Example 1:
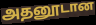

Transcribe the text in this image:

அதனூடான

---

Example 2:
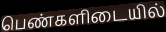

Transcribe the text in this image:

பெண்களிடையில்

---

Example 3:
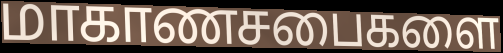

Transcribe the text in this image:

மாகாணசபைகளை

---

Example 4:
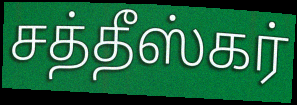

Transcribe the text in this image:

சத்தீஸ்கர்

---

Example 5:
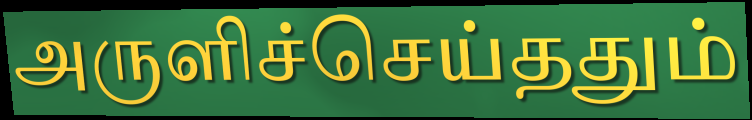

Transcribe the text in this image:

அருளிச்செய்ததும்